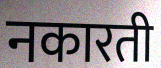
नकारती